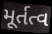
મૂર્તત્વ